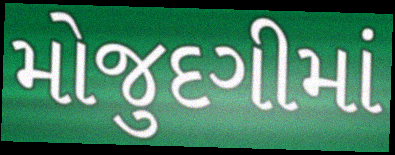
મોજુદગીમાં